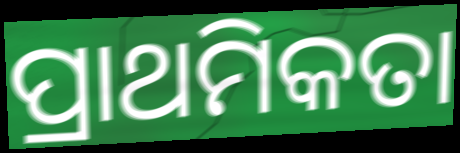
ପ୍ରାଥମିକତା